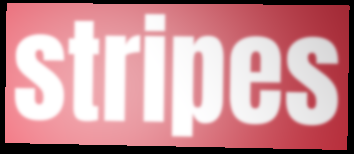
stripes